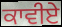
ਕਾਵੀਏ